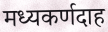
मध्यकर्णदाह